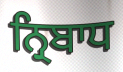
ਨ੍ਰਿਬਾਧ